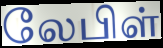
லேபிள்